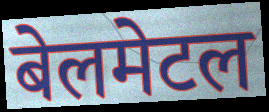
बेलमेटल